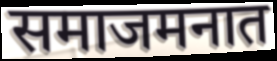
समाजमनात